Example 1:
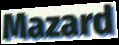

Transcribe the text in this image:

Mazard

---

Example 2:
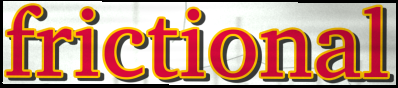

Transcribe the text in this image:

frictional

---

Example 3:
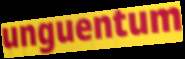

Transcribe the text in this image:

unguentum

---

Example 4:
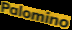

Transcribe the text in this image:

Palomino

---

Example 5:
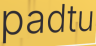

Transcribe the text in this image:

padtu